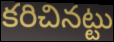
కరిచినట్టు